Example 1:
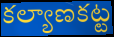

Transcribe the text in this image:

కల్యాణకట్ట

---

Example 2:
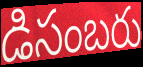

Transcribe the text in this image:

డిసంబరు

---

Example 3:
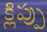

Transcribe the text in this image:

క్లిప్పు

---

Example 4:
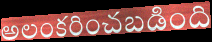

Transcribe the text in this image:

అలంకరించబడింది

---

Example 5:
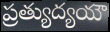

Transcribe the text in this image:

ప్రత్యుద్యయౌ